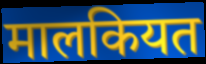
मालकियत